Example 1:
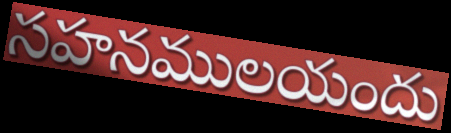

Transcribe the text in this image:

సహనములయందు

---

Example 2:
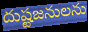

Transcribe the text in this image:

దుష్టజనులను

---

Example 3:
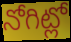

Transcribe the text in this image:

నోగిట్లో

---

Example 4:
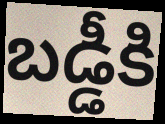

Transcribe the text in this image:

బడ్డీకి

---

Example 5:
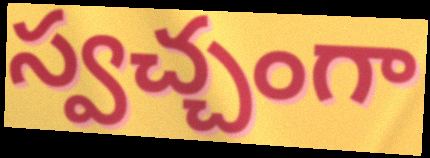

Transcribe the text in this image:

స్వచ్చంగా